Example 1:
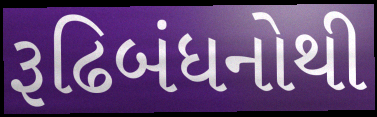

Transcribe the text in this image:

રૂઢિબંધનોથી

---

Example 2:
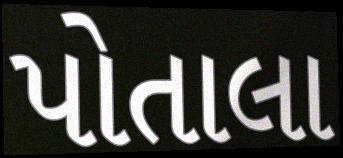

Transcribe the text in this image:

પોતાલા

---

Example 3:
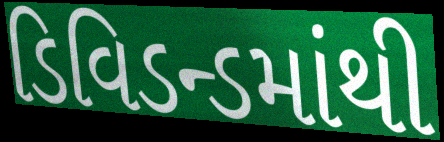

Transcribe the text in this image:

ડિવિડન્ડમાંથી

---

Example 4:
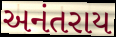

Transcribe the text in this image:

અનંતરાય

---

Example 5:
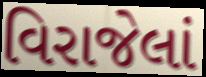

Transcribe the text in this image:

વિરાજેલાં